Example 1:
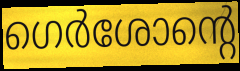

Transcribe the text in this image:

ഗെർശോന്റെ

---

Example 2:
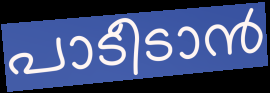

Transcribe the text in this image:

പാടീടാൻ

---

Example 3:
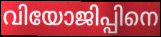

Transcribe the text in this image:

വിയോജിപ്പിനെ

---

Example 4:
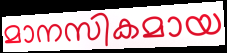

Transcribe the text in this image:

മാനസികമായ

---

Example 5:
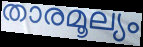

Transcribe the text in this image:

താരമൂല്യം